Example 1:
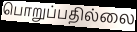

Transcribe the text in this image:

பொறுப்பதில்லை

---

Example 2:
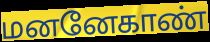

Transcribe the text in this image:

மனனேகாண்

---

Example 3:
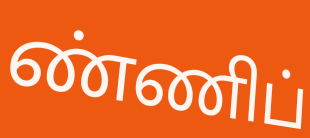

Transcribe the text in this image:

ண்ணிப்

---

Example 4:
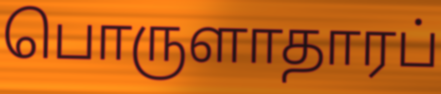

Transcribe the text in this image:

பொருளாதாரப்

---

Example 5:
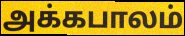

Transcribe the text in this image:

அக்கபாலம்